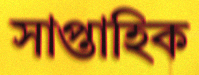
সাপ্তাহিক